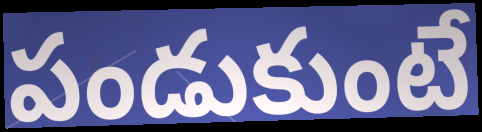
పండుకుంటే